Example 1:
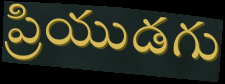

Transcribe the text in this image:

ప్రియుడగు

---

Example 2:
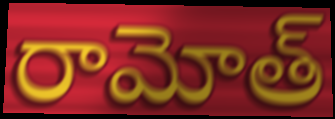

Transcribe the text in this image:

రామోత్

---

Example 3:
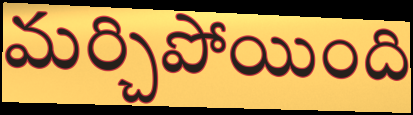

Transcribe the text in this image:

మర్చిపోయింది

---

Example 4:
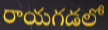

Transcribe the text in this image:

రాయగడలో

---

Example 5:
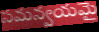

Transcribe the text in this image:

సమన్వయమై